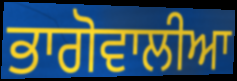
ਭਾਗੋਵਾਲੀਆ